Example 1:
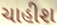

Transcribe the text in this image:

ચાહીશ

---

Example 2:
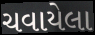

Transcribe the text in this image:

ચવાયેલા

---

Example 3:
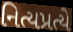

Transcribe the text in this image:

નિત્યપ્રત્યે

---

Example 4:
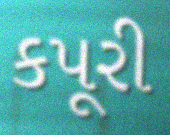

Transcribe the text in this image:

કપૂરી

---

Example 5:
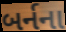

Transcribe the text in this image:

બર્નના